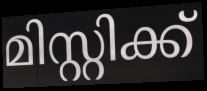
മിസ്റ്റിക്ക്